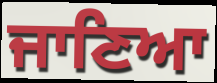
ਜਾਣਿਆ